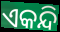
ଏକନ୍ଦି